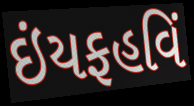
ઇંયફહવિં